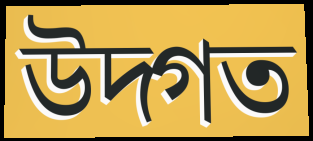
উদ্গত